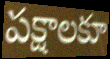
పక్షాలకూ